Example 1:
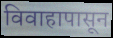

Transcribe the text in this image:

विवाहापासून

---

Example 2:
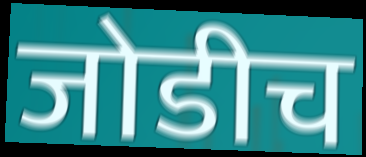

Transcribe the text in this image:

जोडीच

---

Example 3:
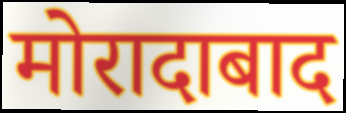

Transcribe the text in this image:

मोरादाबाद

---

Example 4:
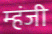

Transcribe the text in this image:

म्हंजी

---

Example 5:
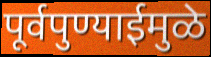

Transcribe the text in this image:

पूर्वपुण्याईमुळे